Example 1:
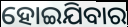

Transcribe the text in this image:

ହୋଇଯିବାର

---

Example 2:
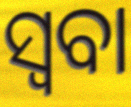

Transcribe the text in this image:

ସ୍ୱବା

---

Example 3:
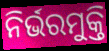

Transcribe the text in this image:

ନିର୍ଭରମୁକ୍ତି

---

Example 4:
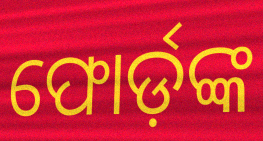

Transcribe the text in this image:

ଫୋର୍ଡ଼ଙ୍କ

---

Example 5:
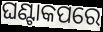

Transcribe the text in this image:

ଘଣ୍ଟାକପରେ